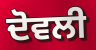
ਦੋਵਲੀ